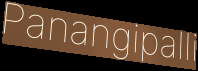
Panangipalli